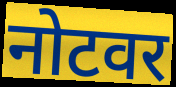
नोटवर